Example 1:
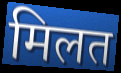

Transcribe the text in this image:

मिलत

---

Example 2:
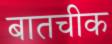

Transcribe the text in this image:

बातचीक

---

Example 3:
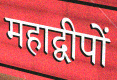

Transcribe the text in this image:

महाद्वीपों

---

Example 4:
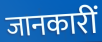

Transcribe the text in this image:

जानकारीं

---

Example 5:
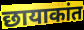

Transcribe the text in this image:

छायाकांत